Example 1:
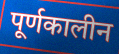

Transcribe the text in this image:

पूर्णकालीन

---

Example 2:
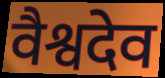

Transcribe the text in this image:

वैश्वदेव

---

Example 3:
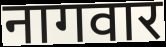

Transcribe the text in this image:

नागवार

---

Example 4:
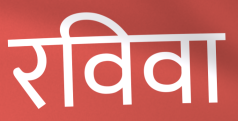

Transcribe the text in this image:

रविवा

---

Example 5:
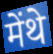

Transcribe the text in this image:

मेंथे